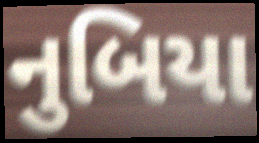
નુબિયા